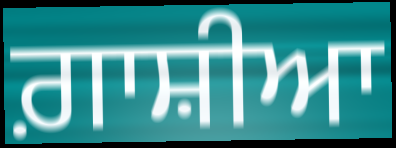
ਗ਼ਾਸ਼ੀਆ